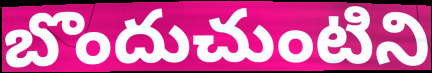
బొందుచుంటిని